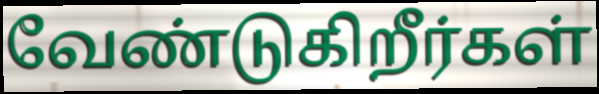
வேண்டுகிறீர்கள்